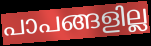
പാപങ്ങളില്ല